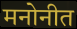
मनोनीत